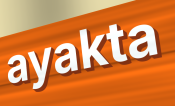
ayakta